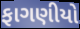
ફાગણીયો